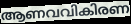
ആണവവികിരണ